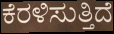
ಕೆರಳಿಸುತ್ತಿದೆ